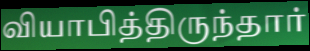
வியாபித்திருந்தார்